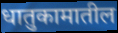
धातुकामातील